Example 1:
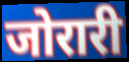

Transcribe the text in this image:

जोरारी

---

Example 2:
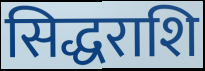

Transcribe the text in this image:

सिद्धराशि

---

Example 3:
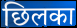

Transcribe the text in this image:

छिलका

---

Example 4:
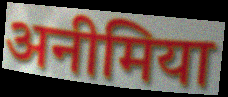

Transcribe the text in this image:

अनीमिया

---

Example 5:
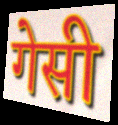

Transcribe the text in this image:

गेसी